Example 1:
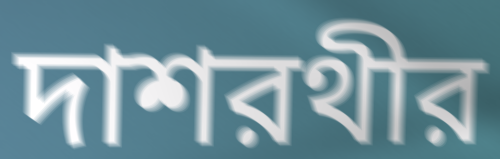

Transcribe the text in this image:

দাশরথীর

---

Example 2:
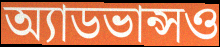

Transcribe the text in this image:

অ্যাডভান্সও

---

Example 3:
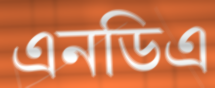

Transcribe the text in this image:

এনডিএ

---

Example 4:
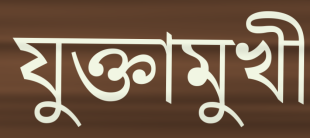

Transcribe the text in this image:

যুক্তামুখী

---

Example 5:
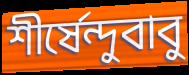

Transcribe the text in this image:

শীর্ষেন্দুবাবু